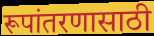
रूपांतरणासाठी